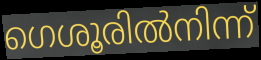
ഗെശൂരിൽനിന്ന്